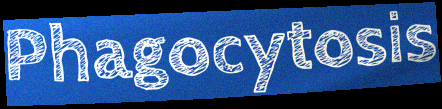
Phagocytosis